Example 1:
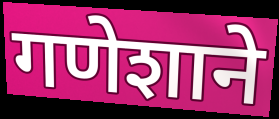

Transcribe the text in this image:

गणेशाने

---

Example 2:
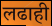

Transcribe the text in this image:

लढाही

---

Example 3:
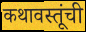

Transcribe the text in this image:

कथावस्तूंची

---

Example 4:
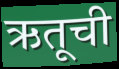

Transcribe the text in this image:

ऋतूची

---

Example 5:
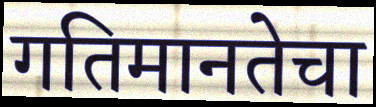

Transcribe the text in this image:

गतिमानतेचा